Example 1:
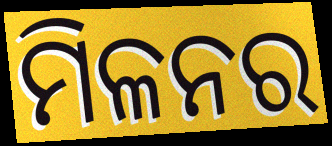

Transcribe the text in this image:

ମିଳନର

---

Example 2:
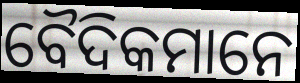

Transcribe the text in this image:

ବୈଦିକମାନେ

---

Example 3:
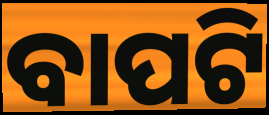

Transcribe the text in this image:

ବାପଟି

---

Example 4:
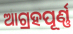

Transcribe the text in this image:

ଆଗ୍ରହପୂର୍ଣ୍ଣ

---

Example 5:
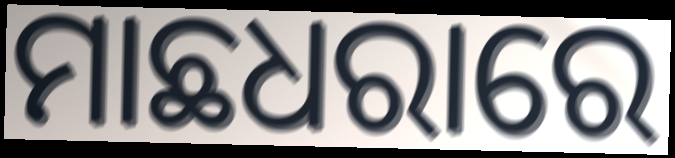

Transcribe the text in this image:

ମାଛଧରାରେ